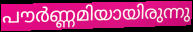
പൗർണ്ണമിയായിരുന്നു